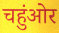
चहुंओर